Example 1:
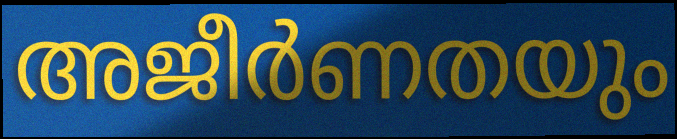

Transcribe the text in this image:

അജീർണതയും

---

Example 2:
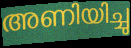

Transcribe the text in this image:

അണിയിച്ചു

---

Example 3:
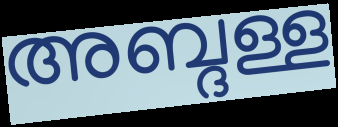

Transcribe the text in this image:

അബ്ദള്ള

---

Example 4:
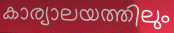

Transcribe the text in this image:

കാര്യാലയത്തിലും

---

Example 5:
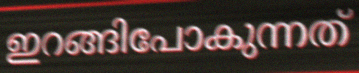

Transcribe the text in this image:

ഇറങ്ങിപോകുന്നത്